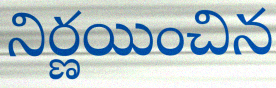
నిర్ణయించిన